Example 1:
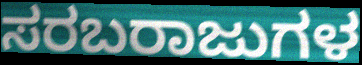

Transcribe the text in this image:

ಸರಬರಾಜುಗಳ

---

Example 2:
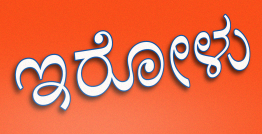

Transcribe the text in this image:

ಇರೋಳು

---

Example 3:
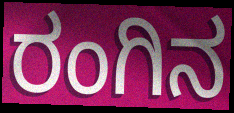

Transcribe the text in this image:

ರಂಗಿನ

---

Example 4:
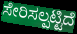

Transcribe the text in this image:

ಸೇರಿಸಲ್ಪಟ್ಟಿದೆ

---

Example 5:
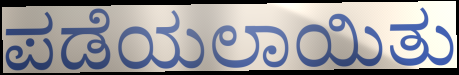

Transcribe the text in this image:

ಪಡೆಯಲಾಯಿತು